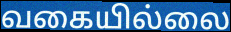
வகையில்லை